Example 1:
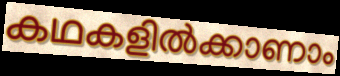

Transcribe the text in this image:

കഥകളിൽക്കാണാം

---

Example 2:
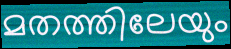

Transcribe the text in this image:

മതത്തിലേയും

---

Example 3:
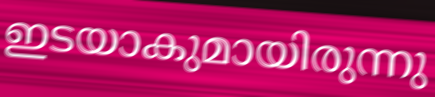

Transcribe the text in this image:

ഇടയാകുമായിരുന്നു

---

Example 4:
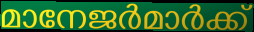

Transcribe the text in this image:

മാനേജർമാർക്ക്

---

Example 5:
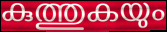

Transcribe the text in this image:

കുത്തുകയും